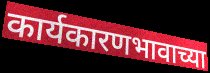
कार्यकारणभावाच्या